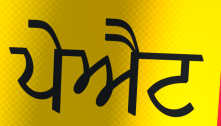
ਪੇਐਟ